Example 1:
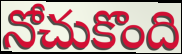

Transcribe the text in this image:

నోచుకొంది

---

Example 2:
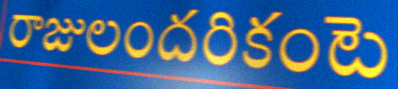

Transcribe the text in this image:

రాజులందరికంటె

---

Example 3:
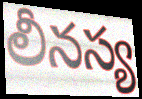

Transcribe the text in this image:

లీనస్య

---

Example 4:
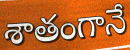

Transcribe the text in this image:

శాతంగానే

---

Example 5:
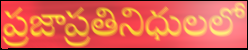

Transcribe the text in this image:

ప్రజాప్రతినిధులలో